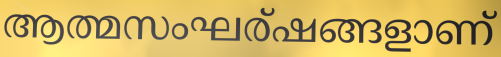
ആത്മസംഘര്ഷങ്ങളാണ്